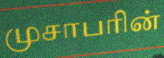
முசாபரின்